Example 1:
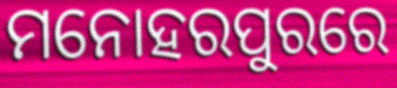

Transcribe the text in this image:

ମନୋହରପୁରରେ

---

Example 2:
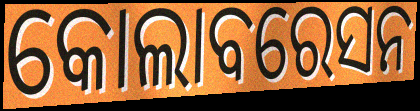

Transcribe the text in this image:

କୋଲାବରେସନ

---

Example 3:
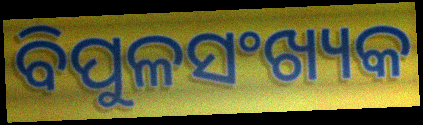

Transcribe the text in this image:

ବିପୁଳସଂଖ୍ୟକ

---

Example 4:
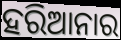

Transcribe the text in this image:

ହରିଆନାର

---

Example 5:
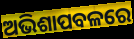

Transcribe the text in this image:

ଅଭିଶାପବଳରେ